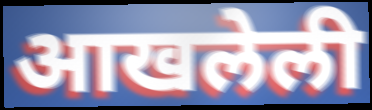
आखलेली